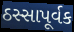
ઠસ્સાપૂર્વક